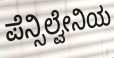
ಪೆನ್ಸಿಲ್ವೇನಿಯ